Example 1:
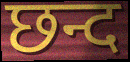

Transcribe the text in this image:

छन्‍द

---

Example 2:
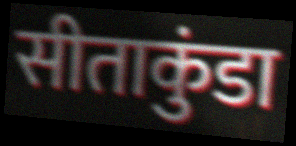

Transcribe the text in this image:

सीताकुंडा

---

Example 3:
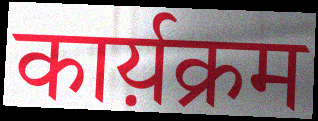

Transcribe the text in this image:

कार्य़क्रम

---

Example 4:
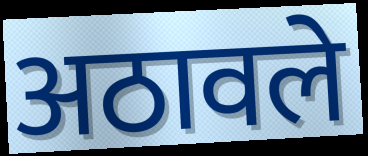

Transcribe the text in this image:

अठावले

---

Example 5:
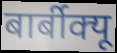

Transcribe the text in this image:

बार्बीक्यू